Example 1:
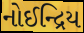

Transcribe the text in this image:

નોઈન્દ્રિય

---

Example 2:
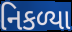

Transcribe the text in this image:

નિકળ્યા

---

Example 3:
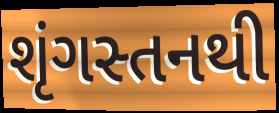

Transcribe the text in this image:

શૃંગસ્તનથી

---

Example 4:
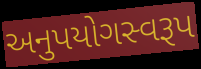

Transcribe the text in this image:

અનુપયોગસ્વરૂપ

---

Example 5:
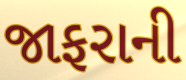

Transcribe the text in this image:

જાફરાની